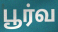
பூர்வ